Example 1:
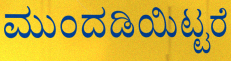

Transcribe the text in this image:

ಮುಂದಡಿಯಿಟ್ಟರೆ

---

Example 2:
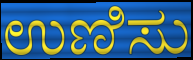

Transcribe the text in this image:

ಉಣಿಸು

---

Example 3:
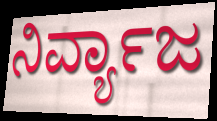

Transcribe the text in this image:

ನಿರ್ವ್ಯಾಜ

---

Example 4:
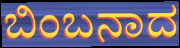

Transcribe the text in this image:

ಬಿಂಬನಾದ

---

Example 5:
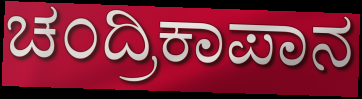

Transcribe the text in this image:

ಚಂದ್ರಿಕಾಪಾನ